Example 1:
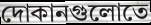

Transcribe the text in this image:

দোকানগুলোতে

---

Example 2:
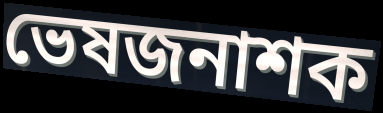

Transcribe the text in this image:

ভেষজনাশক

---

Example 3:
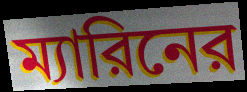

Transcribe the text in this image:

ম্যারিনের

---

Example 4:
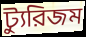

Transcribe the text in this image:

ট্যুরিজম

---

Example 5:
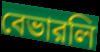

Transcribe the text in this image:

বেভারলি